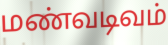
மண்வடிவம்